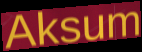
Aksum